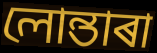
লোন্তাৰা